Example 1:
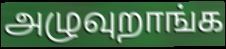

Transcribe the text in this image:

அழுவுறாங்க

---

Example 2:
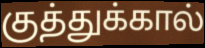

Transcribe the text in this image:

குத்துக்கால்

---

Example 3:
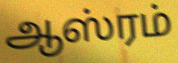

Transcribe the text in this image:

ஆஸ்ரம்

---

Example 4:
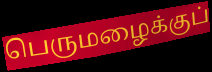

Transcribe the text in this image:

பெருமழைக்குப்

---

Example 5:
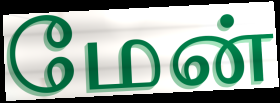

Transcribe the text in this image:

மேன்